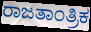
ರಾಜತಾಂತ್ರಿಕ